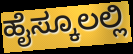
ಹೈಸ್ಕೂಲಲ್ಲಿ